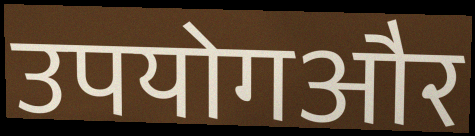
उपयोगऔर